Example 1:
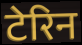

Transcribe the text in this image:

टेरिन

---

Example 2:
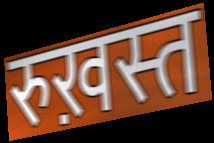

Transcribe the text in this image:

रुख़स्त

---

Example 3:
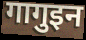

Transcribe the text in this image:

गागुइन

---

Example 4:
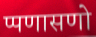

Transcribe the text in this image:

प्पणासणो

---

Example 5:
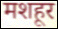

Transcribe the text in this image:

मशहूर